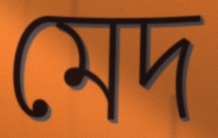
মেদ